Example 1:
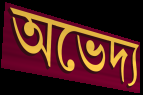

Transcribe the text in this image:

অভেদ্য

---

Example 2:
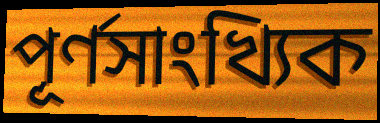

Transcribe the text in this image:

পূর্ণসাংখ্যিক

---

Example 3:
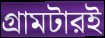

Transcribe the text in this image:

গ্রামটারই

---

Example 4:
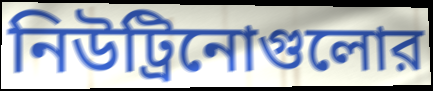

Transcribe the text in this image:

নিউট্রিনোগুলোর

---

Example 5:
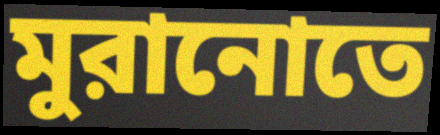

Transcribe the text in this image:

মুরানোতে